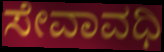
ಸೇವಾವಧಿ